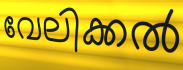
വേലിക്കൽ